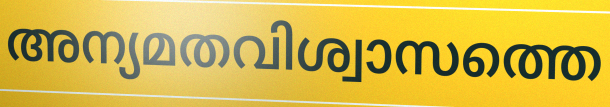
അന്യമതവിശ്വാസത്തെ